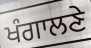
ਖੰਗਾਲਣੇ